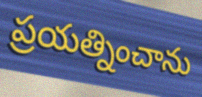
ప్రయత్నించాను